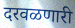
दरवळणारी